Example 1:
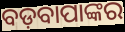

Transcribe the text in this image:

ବଡ଼ବାପାଙ୍କର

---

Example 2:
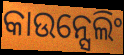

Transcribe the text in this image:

କାଉନ୍ସେଲିଂ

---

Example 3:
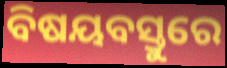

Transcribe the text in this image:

ବିଷୟବସ୍ତୁରେ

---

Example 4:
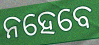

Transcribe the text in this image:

ନହେବେ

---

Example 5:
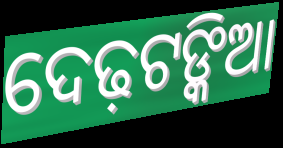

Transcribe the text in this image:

ଦେଢ଼ଟଙ୍କିଆ